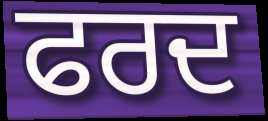
ਫਰਦ